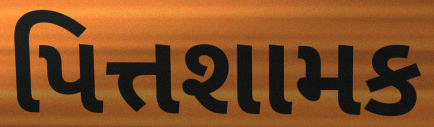
પિત્તશામક